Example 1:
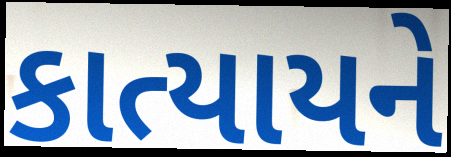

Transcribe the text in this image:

કાત્યાયને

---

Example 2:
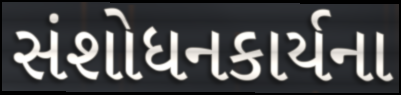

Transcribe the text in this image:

સંશોધનકાર્યના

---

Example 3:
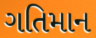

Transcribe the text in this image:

ગતિમાન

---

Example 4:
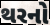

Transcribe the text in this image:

થરનો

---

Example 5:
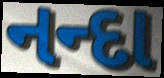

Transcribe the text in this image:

નન્દા